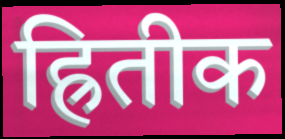
ह्रितीक